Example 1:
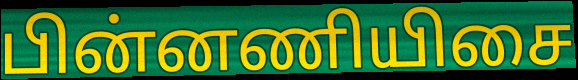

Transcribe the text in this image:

பின்னணியிசை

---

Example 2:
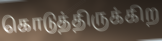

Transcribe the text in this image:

கொடுத்திருக்கிற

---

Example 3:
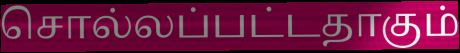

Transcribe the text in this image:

சொல்லப்பட்டதாகும்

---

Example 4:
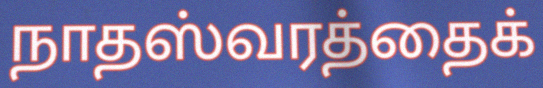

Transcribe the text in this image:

நாதஸ்வரத்தைக்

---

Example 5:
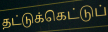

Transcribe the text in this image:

தட்டுக்கெட்டுப்